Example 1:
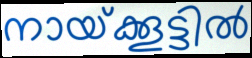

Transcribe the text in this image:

നായ്‌ക്കൂട്ടിൽ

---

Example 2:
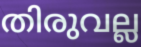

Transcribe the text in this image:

തിരുവല്ല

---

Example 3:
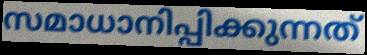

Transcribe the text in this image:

സമാധാനിപ്പിക്കുന്നത്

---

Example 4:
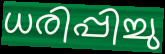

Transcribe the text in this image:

ധരിപ്പിച്ചു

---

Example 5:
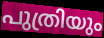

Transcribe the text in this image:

പുത്രിയും